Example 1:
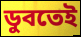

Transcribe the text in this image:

ডুবতেই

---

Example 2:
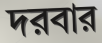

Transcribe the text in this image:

দরবার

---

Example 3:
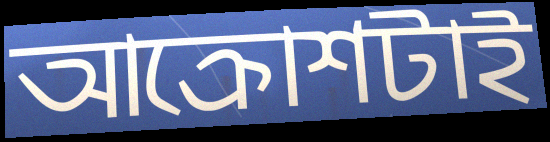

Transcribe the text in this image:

আক্রোশটাই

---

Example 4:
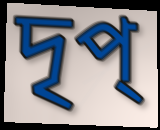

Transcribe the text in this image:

দৃপ্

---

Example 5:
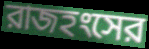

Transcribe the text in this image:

রাজহংসের